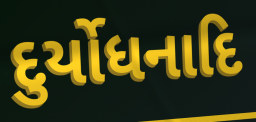
દુર્યોધનાદિ